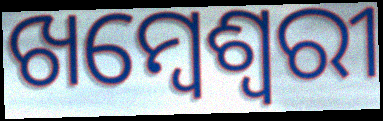
ଖମ୍ବେଶ୍ଵରୀ